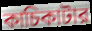
কাচিকাটার